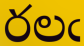
రలఁ